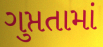
ગુપ્તતામાં